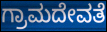
ಗ್ರಾಮದೇವತೆ